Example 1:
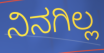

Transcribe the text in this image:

ನಿನಗಿಲ್ಲ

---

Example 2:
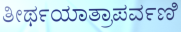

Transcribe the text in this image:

ತೀರ್ಥಯಾತ್ರಾಪರ್ವಣಿ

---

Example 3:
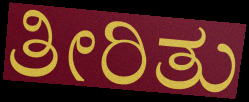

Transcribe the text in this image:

ತೀರಿತು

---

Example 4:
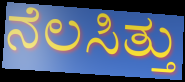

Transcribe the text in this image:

ನೆಲಸಿತ್ತು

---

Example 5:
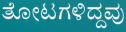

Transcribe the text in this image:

ತೋಟಗಳಿದ್ದವು